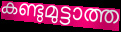
കണ്ടുമുട്ടാത്ത